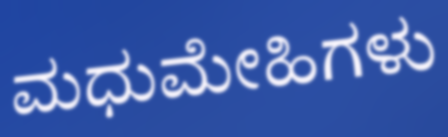
ಮಧುಮೇಹಿಗಳು